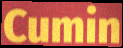
Cumin